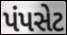
પંપસેટ